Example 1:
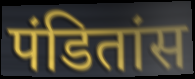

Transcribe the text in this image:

पंडितांस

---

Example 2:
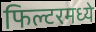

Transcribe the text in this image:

फिल्टरमध्ये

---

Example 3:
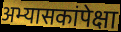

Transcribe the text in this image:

अभ्यासकांपेक्षा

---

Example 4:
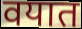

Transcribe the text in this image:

वयात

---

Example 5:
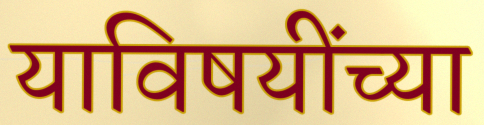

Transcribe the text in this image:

याविषयींच्या